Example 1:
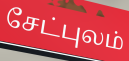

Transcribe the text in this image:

சேட்புலம்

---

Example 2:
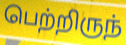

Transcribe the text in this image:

பெற்றிருந்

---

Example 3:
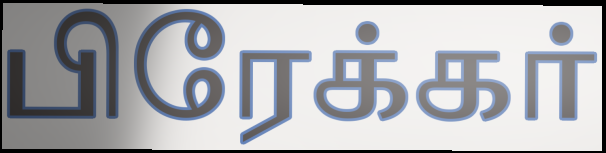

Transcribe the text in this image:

பிரேக்கர்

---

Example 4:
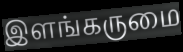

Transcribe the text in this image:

இளங்கருமை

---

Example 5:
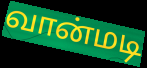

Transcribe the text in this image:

வான்மடி